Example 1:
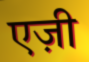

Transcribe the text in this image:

एज़ी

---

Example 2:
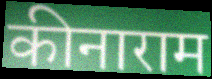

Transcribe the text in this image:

कीनाराम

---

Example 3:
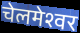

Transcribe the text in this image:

चेलमेश्वर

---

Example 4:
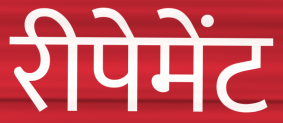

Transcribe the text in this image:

रीपेमेंट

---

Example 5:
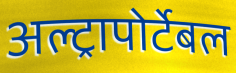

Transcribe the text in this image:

अल्ट्रापोर्टेबल